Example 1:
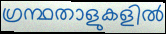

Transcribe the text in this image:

ഗ്രന്ഥതാളുകളിൽ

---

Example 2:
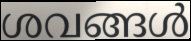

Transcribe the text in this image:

ശവങ്ങൾ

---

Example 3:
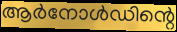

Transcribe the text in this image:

ആർനോൾഡിന്റെ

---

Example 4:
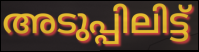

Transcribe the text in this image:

അടുപ്പിലിട്ട്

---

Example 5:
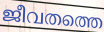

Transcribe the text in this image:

ജീവതത്തെ